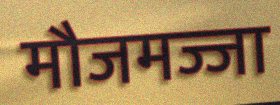
मौजमज्जा